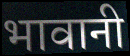
भावानी